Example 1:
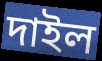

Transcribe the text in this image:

দাইল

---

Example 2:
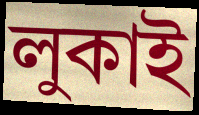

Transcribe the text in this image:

লুকাই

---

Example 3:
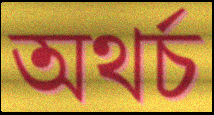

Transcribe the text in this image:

অথৰ্চ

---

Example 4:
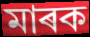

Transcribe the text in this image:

মাৰক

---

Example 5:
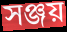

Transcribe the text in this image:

সঞ্জয়